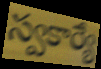
స్వకార్యే